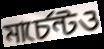
মার্চেন্টও